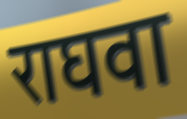
राघवा